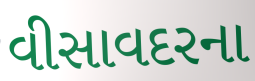
વીસાવદરના